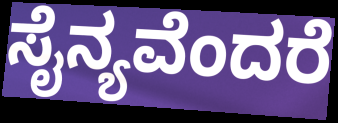
ಸೈನ್ಯವೆಂದರೆ